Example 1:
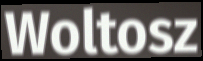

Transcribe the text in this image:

Woltosz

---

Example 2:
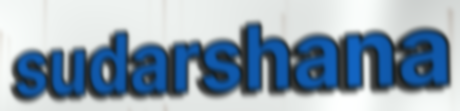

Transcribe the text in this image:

sudarshana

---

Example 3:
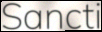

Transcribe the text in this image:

Sancti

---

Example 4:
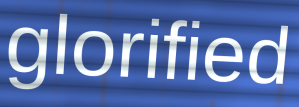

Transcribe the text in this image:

glorified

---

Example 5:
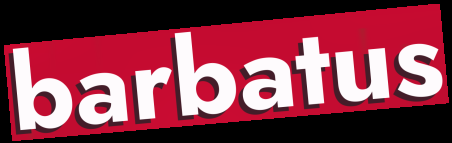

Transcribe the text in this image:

barbatus